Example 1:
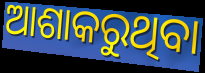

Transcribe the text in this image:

ଆଶାକରୁଥିବା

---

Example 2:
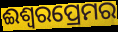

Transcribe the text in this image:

ଈଶ୍ୱରପ୍ରେମର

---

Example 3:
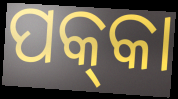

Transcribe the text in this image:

ପକ୍‍କା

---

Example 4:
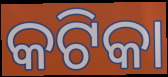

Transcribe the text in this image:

କଟିକା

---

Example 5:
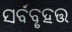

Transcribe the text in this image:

ସର୍ବବୃହତ୍ତ